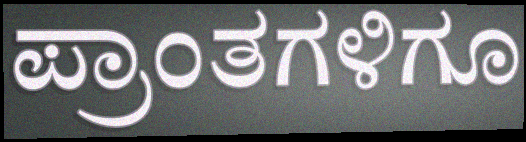
ಪ್ರಾಂತಗಳಿಗೂ